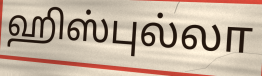
ஹிஸ்புல்லா